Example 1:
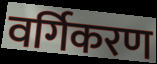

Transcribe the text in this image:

वर्गिकरण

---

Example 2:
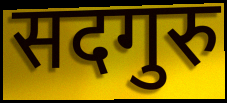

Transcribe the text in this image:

सदगुरु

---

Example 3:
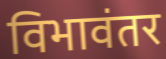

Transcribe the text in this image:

विभावंतर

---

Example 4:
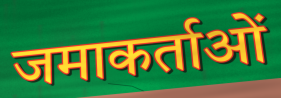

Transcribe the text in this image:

जमाकर्ताओं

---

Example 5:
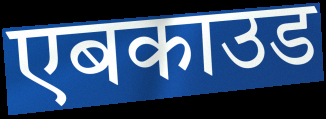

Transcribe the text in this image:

एबकाउड